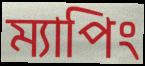
ম্যাপিং